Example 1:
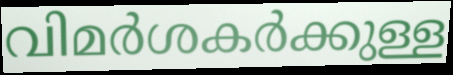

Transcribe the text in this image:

വിമർശകർക്കുള്ള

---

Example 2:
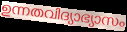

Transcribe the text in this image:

ഉന്നതവിദ്യാഭ്യാസം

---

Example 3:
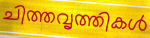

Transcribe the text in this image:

ചിത്തവൃത്തികൾ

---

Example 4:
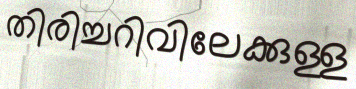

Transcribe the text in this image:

തിരിച്ചറിവിലേക്കുള്ള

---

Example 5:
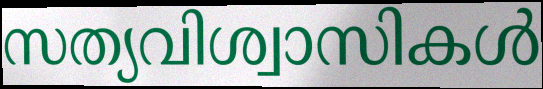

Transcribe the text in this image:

സത്യവിശ്വാസികൾ